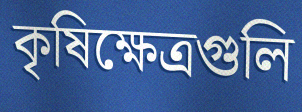
কৃষিক্ষেত্রগুলি